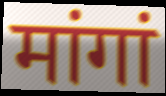
मांगां